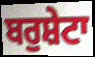
ਬਰੁਸ਼ੇਟਾ